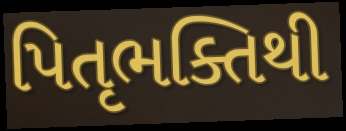
પિતૃભક્તિથી